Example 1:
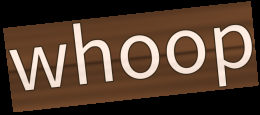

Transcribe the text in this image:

whoop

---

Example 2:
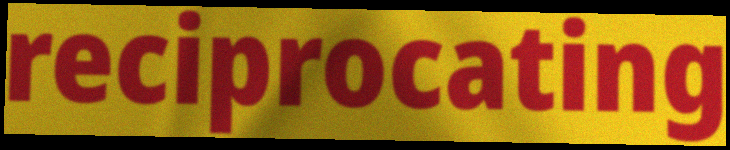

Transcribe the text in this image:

reciprocating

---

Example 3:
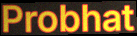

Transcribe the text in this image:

Probhat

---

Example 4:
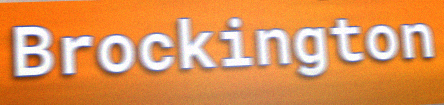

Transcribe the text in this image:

Brockington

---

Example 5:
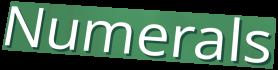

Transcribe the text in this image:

Numerals